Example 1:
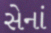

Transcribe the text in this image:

સેનાં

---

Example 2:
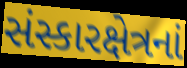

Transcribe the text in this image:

સંસ્કારક્ષેત્રનાં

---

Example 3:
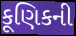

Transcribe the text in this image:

કૂણિકની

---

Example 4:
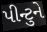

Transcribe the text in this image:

પીન્ટુને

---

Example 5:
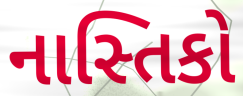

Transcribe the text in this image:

નાસ્તિકો